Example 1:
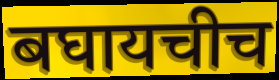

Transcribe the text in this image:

बघायचीच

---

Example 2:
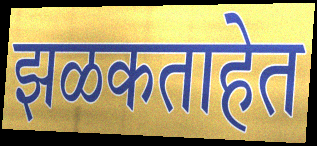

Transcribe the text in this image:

झळकताहेत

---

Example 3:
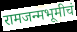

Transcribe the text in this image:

रामजन्मभूमीचं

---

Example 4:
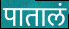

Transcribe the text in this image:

पातालं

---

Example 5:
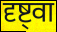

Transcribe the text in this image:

दृष्ट्‍वा